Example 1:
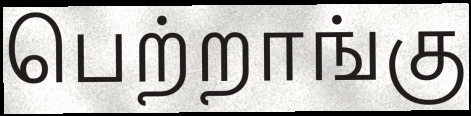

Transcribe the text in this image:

பெற்றாங்கு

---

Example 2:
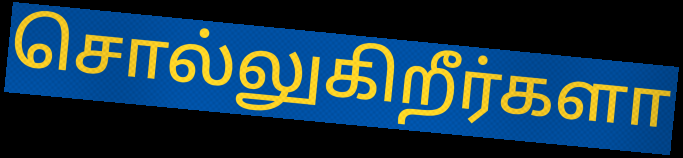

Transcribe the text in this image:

சொல்லுகிறீர்களா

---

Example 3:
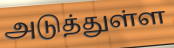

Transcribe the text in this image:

அடுத்துள்ள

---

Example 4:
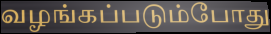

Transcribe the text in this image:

வழங்கப்படும்போது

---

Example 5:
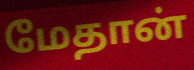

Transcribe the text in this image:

மேதான்